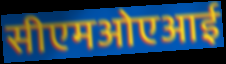
सीएमओएआई